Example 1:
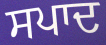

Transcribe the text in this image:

ਸਪਾਦ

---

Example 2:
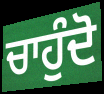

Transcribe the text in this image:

ਚਾਹੁੰਦੋ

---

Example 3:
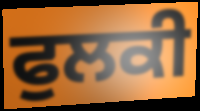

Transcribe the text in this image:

ਫੁਲਕੀ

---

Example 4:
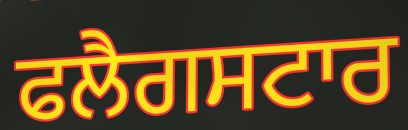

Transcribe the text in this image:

ਫਲੈਗਸਟਾਰ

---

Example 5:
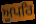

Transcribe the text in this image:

ਅੂਪਰਿ